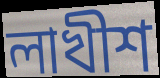
লাখীশ